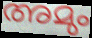
അമും